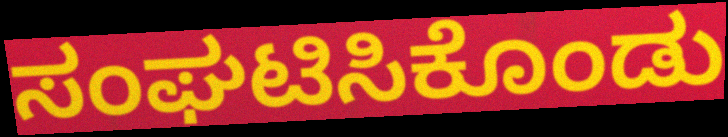
ಸಂಘಟಿಸಿಕೊಂಡು